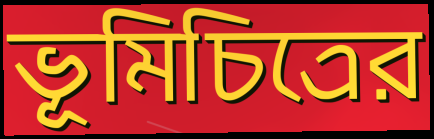
ভূমিচিত্রের